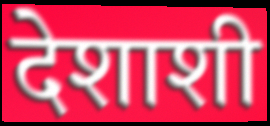
देशाशी